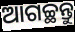
ଆଗଚ୍ଛନ୍ତୁ